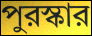
পুরস্কার